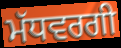
ਮੱਧਵਰਗੀ